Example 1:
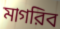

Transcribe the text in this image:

মাগরিব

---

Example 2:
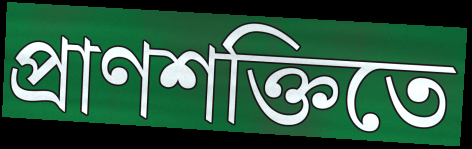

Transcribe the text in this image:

প্রাণশক্তিতে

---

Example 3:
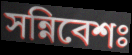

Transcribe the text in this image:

সন্নিবেশঃ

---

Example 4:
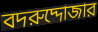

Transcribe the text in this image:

বদরুদ্দোজার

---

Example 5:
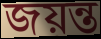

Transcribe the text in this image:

জয়ন্ত